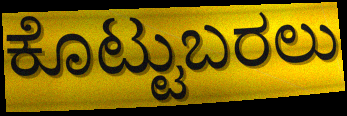
ಕೊಟ್ಟುಬರಲು